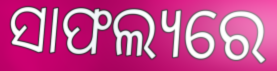
ସାଫଲ୍ୟରେ